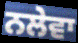
ਨਲੇਵਾ